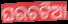
ଘରଚଟିଆ